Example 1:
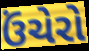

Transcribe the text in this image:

ઉંચેરો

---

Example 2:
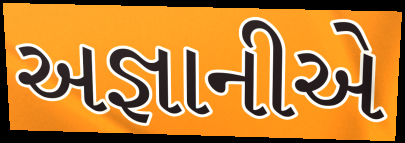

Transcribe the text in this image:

અજ્ઞાનીએ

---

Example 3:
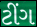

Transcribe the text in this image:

ટીંગ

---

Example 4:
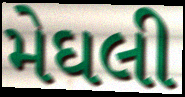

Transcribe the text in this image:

મેઘલી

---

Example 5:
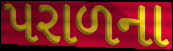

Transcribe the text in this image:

પરાળના